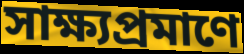
সাক্ষ্যপ্রমাণে